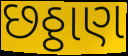
છઠ્ઠાણ